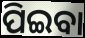
ପିଇବା